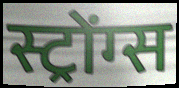
स्ट्रोंग्स